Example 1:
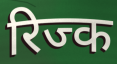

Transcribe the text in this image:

रिज्क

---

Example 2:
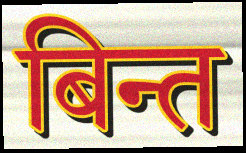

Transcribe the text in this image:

बिन्त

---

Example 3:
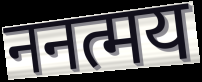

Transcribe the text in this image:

ननत्मय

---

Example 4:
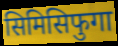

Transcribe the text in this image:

सिमिसिफुगा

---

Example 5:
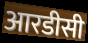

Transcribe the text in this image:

आरडीसी